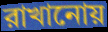
রাখানোয়